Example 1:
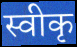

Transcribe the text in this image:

स्वीकृ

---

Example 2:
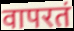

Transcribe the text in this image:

वापरतं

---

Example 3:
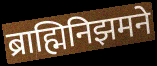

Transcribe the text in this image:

ब्राह्मिनिझमने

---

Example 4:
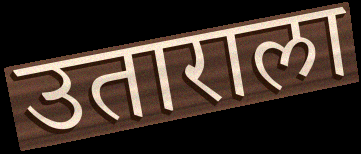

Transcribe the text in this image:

उताराला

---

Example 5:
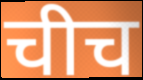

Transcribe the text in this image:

चीच